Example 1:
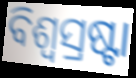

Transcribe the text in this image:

ବିଶ୍ୱସ୍ରଷ୍ଟା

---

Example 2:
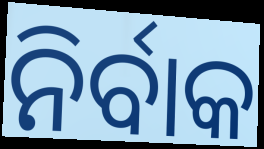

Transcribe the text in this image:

ନିର୍ବାକ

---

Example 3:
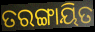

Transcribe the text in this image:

ତରଙ୍ଗାୟିତ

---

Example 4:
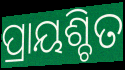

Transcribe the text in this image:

ପ୍ରାୟଶ୍ଚିତ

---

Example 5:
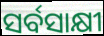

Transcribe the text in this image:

ସର୍ବସାକ୍ଷୀ